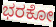
ಭರಕೋ